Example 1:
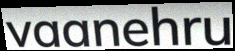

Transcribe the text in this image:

vaanehru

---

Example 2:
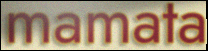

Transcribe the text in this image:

mamata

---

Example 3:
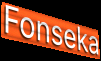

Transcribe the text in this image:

Fonseka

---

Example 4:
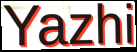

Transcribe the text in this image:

Yazhi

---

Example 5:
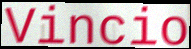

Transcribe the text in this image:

Vincio